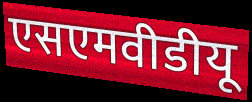
एसएमवीडीयू